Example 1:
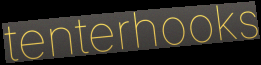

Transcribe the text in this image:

tenterhooks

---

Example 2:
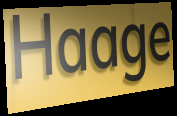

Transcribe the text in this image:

Haage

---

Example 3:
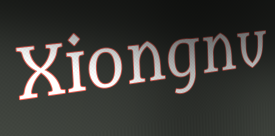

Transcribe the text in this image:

Xiongnu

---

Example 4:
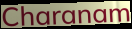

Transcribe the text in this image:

Charanam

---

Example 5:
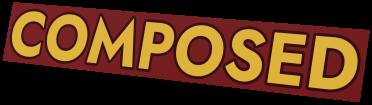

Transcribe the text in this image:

COMPOSED